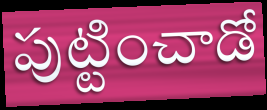
పుట్టించాడో